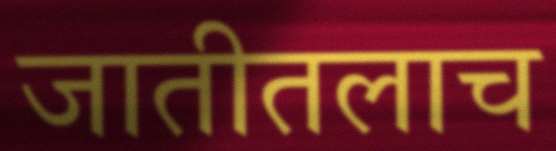
जातीतलाच